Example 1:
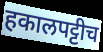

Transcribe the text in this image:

हकालपट्टीच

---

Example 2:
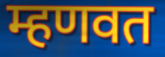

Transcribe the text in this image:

म्हणवत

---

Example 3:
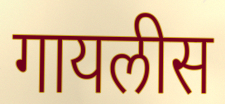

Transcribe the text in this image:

गायलीस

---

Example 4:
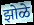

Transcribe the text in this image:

झोळे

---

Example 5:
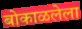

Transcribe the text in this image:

बोकाळलेला